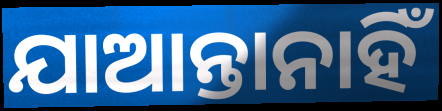
ଯାଆନ୍ତାନାହିଁ